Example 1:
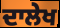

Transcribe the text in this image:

ਦਾਲੇਖ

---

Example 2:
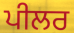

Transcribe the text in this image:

ਪੀਲਰ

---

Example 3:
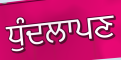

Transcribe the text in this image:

ਧੁੰਦਲਾਪਣ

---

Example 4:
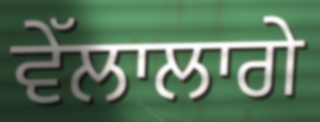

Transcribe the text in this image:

ਵੇੱਲਾਲਾਗੇ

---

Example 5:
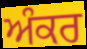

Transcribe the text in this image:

ਅੰਕਰ